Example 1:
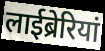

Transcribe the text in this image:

लाईब्रेरियां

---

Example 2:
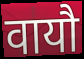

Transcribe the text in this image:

वायौ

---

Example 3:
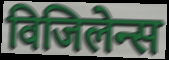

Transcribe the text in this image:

विजिलेन्स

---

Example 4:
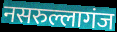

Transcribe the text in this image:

नसरुल्लागंज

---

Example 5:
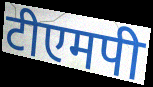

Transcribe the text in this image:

टीएमपी